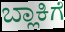
ಬ್ಲಾಕಿಗೆ